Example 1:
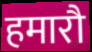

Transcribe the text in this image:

हमारौ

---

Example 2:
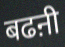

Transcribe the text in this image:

बढऩी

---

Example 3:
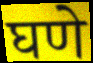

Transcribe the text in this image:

घणे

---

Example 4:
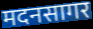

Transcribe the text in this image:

मदनसागर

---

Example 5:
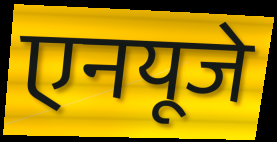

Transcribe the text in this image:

एनयूजे